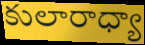
కులారాధ్యా